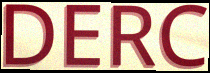
DERC